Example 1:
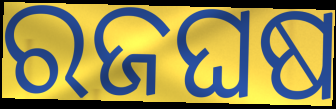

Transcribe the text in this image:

ରଜଘଷ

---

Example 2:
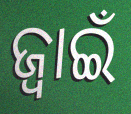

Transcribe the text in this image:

ଜ୍ଵାଇଁ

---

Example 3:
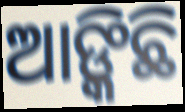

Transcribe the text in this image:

ଆଙ୍କିଛି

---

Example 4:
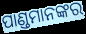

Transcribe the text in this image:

ପାଣ୍ଡମାନଙ୍କର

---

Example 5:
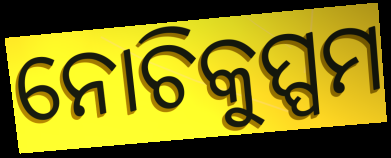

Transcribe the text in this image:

ନୋଚିକୁପ୍ପମ